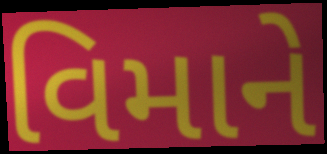
વિમાને